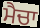
ਮੈਚਾ